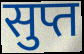
सुप्त